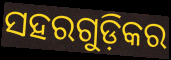
ସହରଗୁଡ଼ିକର